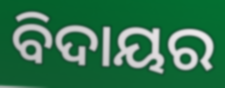
ବିଦାୟର